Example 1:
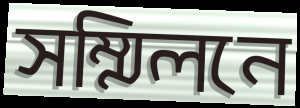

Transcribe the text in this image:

সম্মিলনে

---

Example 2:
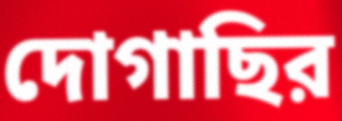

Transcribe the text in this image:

দোগাছির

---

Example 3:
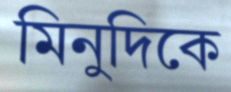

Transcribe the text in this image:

মিনুদিকে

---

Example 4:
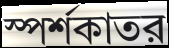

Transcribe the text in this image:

স্পর্শকাতর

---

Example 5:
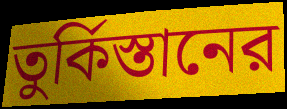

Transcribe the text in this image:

তুর্কিস্তানের